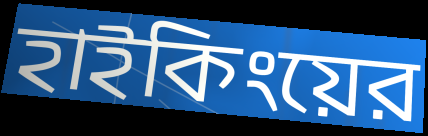
হাইকিংয়ের